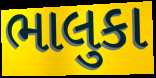
ભાલુકા